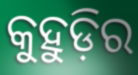
କୁହୁଡ଼ିର